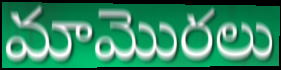
మామొరలు